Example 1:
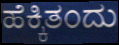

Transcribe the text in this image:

ಹೆಕ್ಕಿತಂದು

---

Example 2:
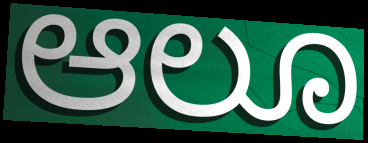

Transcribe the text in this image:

ಆಲೂ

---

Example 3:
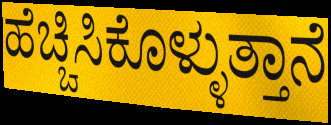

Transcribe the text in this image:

ಹೆಚ್ಚಿಸಿಕೊಳ್ಳುತ್ತಾನೆ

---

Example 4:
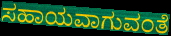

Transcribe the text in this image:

ಸಹಾಯವಾಗುವಂತೆ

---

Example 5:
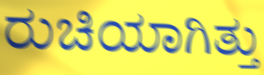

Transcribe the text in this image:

ರುಚಿಯಾಗಿತ್ತು